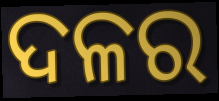
ଦଳର